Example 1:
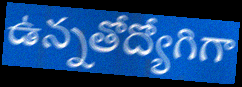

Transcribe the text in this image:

ఉన్నతోద్యోగిగా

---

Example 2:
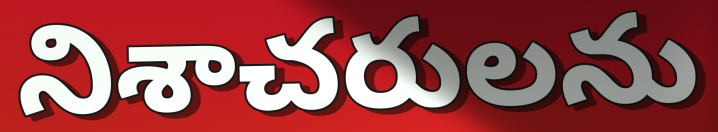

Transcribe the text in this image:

నిశాచరులను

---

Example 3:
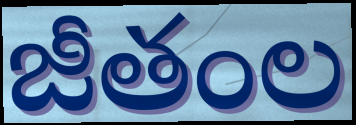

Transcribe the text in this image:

జీతంల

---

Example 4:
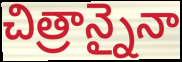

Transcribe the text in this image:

చిత్రాన్నైనా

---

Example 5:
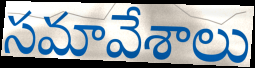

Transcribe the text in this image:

సమావేశాలు